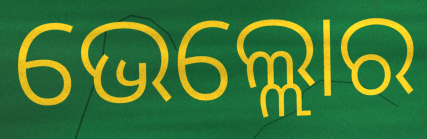
ଭେଲ୍ଲୋର